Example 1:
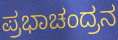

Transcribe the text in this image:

ಪ್ರಭಾಚಂದ್ರನ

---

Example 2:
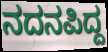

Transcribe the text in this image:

ನದನಪಿದ್ದ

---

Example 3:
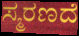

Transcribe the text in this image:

ಸ್ಮರಣದೆ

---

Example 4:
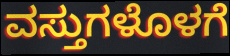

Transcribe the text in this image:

ವಸ್ತುಗಳೊಳಗೆ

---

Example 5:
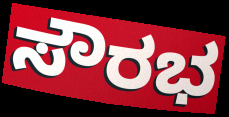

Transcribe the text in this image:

ಸೌರಭ